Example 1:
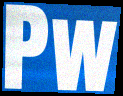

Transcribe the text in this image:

Pw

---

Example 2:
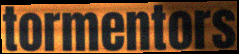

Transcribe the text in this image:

tormentors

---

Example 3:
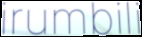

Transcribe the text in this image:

irumbili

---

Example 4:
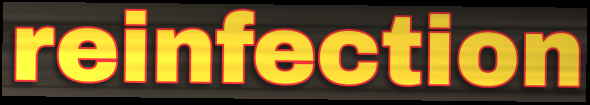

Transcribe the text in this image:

reinfection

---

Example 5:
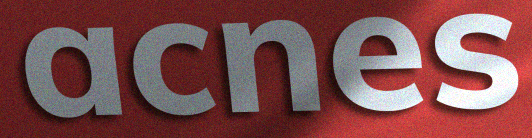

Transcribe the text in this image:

acnes